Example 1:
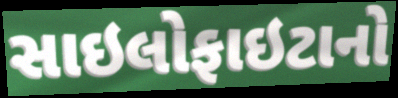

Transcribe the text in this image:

સાઇલોફાઇટાનો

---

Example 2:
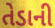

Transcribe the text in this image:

તેડાની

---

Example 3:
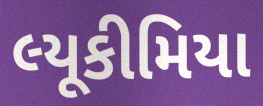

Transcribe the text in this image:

લ્યૂકીમિયા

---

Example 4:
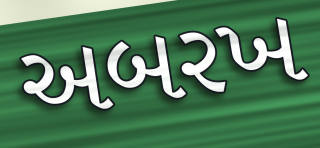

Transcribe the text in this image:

અબરખ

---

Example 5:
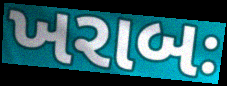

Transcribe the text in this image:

ખરાબઃ